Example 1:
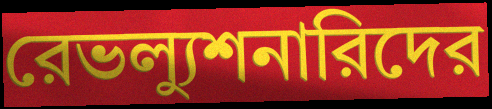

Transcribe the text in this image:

রেভল্যুশনারিদের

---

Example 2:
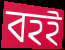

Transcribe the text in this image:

বহই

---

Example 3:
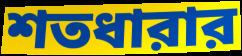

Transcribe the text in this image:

শতধারার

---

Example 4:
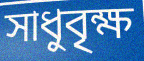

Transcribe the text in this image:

সাধুবৃক্ষ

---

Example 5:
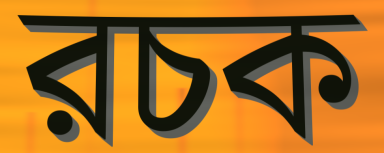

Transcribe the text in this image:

রচক